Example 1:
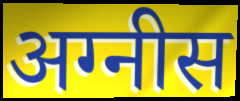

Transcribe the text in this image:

अग्नीस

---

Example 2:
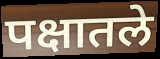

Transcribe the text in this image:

पक्षातले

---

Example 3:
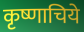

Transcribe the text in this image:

कृष्णाचिये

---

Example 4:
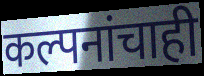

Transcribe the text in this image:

कल्पनांचाही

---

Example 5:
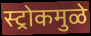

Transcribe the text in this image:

स्ट्रोकमुळे